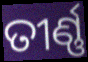
ତୀର୍ଣ୍ଣ